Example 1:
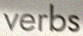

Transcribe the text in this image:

verbs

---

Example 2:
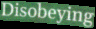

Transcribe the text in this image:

Disobeying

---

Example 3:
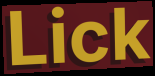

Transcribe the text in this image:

Lick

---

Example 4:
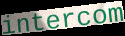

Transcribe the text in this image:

intercom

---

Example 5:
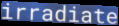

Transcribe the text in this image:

irradiate